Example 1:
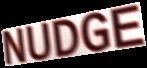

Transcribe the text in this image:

NUDGE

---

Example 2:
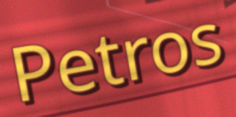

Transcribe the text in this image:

Petros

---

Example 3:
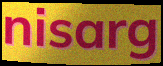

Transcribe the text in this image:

nisarg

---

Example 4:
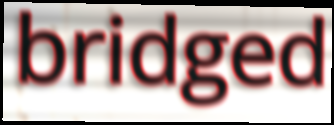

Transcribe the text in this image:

bridged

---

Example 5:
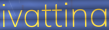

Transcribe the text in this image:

ivattina